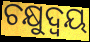
ଚକ୍ଷୁଦ୍ୱୟ